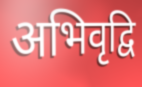
अभिवृद्वि